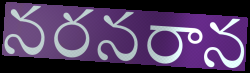
నరనరాన